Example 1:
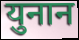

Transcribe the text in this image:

युनान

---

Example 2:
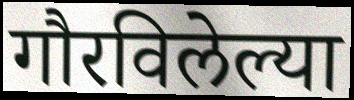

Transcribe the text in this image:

गौरविलेल्या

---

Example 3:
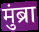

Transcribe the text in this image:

मुंब्रा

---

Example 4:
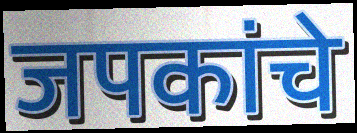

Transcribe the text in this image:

जपकांचे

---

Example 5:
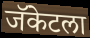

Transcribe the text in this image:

जॅकेटला